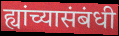
ह्यांच्यासंबंधी